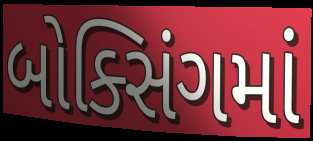
બોક્સિંગમાં